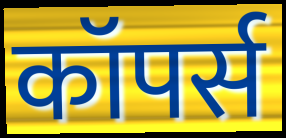
कॉपर्स